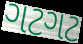
ગટગટ